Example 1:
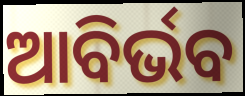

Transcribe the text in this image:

ଆବିର୍ଭବ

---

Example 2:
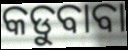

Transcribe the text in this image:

କଡୁବାବା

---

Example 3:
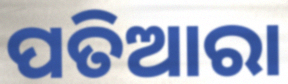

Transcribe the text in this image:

ପତିଆରା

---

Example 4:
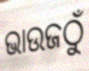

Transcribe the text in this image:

ଭାଉଜଠୁଁ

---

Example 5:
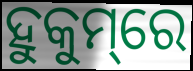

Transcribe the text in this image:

ହୁକୁମ୍‌ରେ